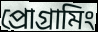
প্ৰোগ্ৰামিং